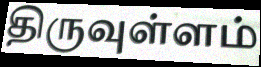
திருவுள்ளம்